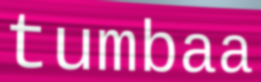
tumbaa